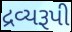
દ્રવ્યરૂપી